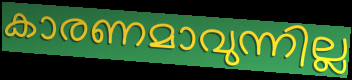
കാരണമാവുന്നില്ല